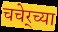
चचेर्च्या